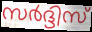
സർദ്ദിസ്